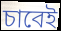
চাবেই